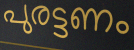
പുരട്ടണം